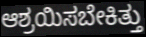
ಆಶ್ರಯಿಸಬೇಕಿತ್ತು